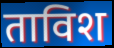
ताविश